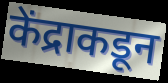
केंद्राकडून